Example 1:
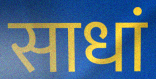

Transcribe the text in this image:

साधां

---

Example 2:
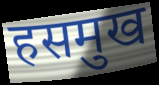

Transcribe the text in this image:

हसमुख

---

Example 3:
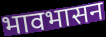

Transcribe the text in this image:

भावभासन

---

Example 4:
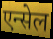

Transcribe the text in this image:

एन्सेल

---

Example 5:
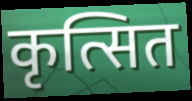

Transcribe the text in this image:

कृत्सित